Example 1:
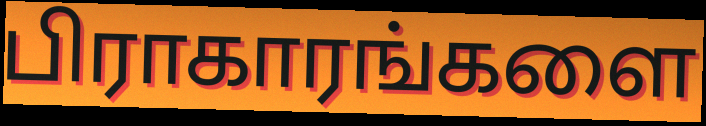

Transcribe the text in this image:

பிராகாரங்களை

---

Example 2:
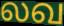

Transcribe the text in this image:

லவ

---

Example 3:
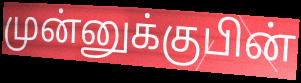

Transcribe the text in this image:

முன்னுக்குபின்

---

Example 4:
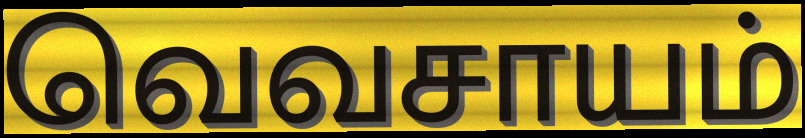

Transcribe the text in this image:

வெவசாயம்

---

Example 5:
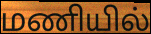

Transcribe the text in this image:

மணியில்